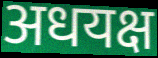
अधयक्ष